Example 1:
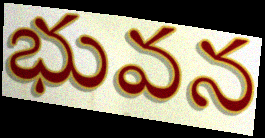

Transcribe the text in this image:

భువన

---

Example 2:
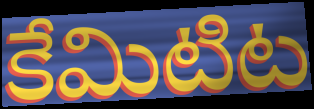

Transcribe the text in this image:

కేమిటిట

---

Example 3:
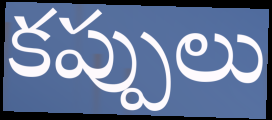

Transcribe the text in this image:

కప్పులు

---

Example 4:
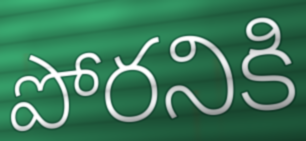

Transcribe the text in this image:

పోరనికి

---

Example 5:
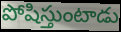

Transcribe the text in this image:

పోషిస్తుంటాడు